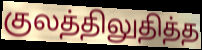
குலத்திலுதித்த